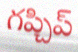
గప్చిప్